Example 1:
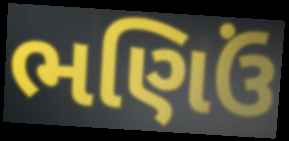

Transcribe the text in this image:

ભણિઉં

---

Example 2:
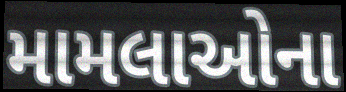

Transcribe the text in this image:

મામલાઓના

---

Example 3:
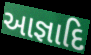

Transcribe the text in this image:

આજ્ઞાદિ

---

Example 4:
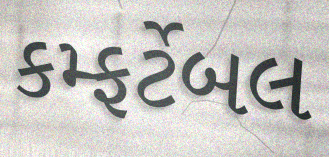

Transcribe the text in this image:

કમ્ફર્ટેબલ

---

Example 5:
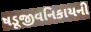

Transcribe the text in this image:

ષડૂજીવનિકાયની